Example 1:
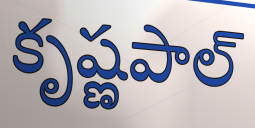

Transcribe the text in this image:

కృష్ణపాల్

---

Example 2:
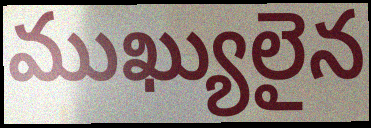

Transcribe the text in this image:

ముఖ్యులైన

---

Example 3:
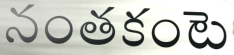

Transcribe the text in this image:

నంతకంటె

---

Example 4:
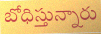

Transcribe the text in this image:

బోధిస్తున్నారు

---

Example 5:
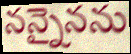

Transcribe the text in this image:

నన్నైనను